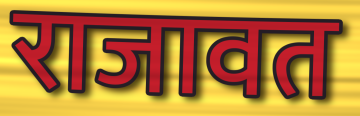
राजावत